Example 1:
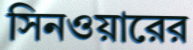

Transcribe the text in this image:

সিনওয়ারের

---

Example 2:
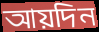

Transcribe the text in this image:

আয়দিন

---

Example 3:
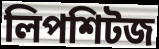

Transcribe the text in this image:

লিপশিটজ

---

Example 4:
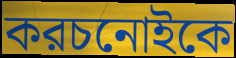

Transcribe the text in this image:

করচনোইকে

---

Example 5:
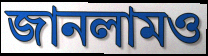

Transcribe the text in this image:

জানলামও